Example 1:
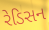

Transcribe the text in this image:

રેડિસન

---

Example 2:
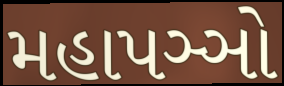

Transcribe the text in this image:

મહાપઞ્ઞો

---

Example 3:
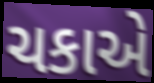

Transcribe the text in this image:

ચકાએ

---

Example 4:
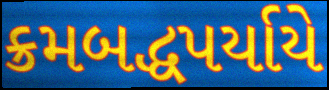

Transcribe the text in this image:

ક્રમબદ્ધપર્યાયે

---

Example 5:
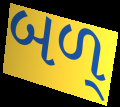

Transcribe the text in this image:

બળ્